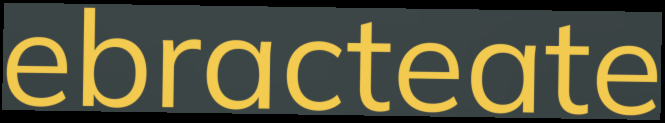
ebracteate